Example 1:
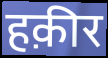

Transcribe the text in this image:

हक़ीर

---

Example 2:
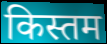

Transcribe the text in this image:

किस्तम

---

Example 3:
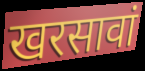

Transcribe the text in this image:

खरसावां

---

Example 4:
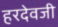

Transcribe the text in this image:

हरदेवजी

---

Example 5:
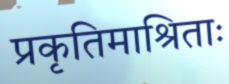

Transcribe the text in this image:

प्रकृतिमाश्रिताः